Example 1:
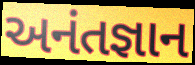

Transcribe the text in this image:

અનંતજ્ઞાન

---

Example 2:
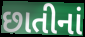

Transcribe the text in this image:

છાતીનાં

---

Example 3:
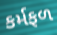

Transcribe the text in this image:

કર્મફળ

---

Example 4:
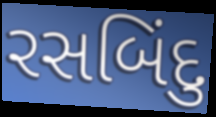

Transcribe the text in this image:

રસબિંદુ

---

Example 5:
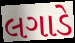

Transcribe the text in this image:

લગાડે